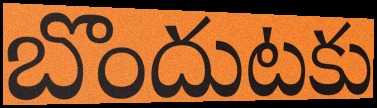
బొందుటకు